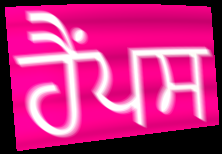
ਹੈਂਪਸ